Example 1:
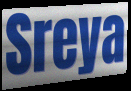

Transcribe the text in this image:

Sreya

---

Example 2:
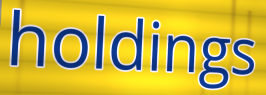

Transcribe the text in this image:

holdings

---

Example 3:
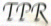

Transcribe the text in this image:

TPR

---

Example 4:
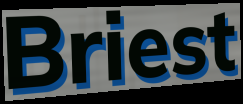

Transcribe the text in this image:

Briest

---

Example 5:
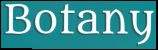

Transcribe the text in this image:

Botany